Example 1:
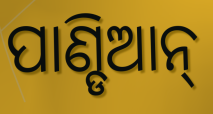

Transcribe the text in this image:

ପାଣ୍ଡିଆନ୍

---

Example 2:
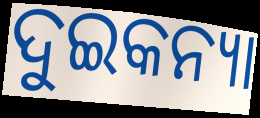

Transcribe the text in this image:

ଦୁଇକନ୍ୟା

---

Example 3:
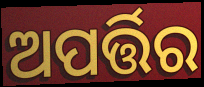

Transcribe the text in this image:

ଅପର୍ତ୍ତିର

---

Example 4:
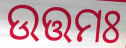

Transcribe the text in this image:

ଉତ୍ତମଃ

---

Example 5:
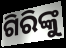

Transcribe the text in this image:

ଗିରିଙ୍କୁ